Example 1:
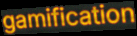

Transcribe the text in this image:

gamification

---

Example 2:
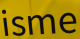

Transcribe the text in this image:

isme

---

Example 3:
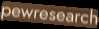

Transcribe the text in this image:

pewresearch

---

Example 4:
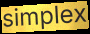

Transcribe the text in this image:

simplex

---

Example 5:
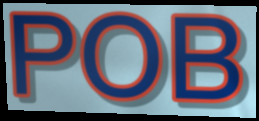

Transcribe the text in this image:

POB